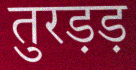
तुरड़ड़